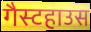
गैस्टहाउस